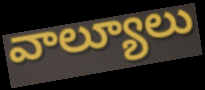
వాల్యూలు